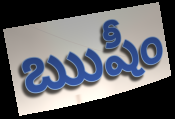
ఋషీం